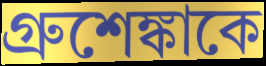
গ্রুশেঙ্কাকে